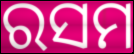
ରସମ